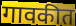
गावकीत